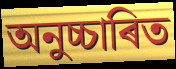
অনুচ্চাৰিত